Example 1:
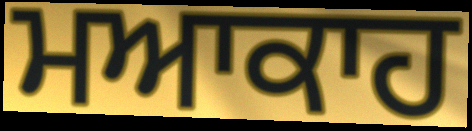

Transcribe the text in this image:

ਮਆਕਾਹ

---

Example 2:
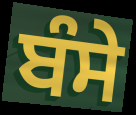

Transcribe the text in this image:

ਬੰਸੇ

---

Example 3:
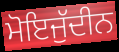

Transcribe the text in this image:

ਮੋਇਜੁੱਦੀਨ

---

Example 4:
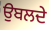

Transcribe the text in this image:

ਉਬਲਦੇ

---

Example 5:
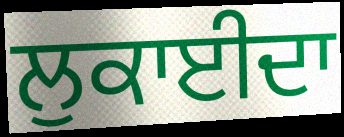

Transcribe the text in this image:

ਲੁਕਾਈਦਾ